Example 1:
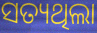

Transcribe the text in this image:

ସତ୍ୟଥିଲା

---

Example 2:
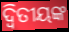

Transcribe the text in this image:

ଦ୍ଵିତୀୟଙ୍କ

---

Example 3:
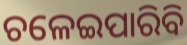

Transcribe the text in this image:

ଚଳେଇପାରିବି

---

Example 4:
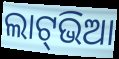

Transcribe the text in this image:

ଲାଟ୍‍ଭିଆ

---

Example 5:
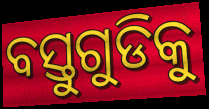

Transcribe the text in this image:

ବସ୍ତୁଗୁଡିକୁ